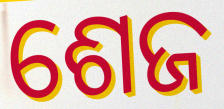
ଶେଜ